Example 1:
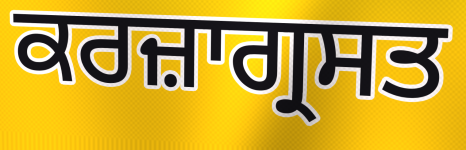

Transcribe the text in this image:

ਕਰਜ਼ਾਗ੍ਰਸਤ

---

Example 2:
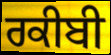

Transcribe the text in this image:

ਰਕੀਬੀ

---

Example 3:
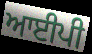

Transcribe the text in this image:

ਆਈਪੀ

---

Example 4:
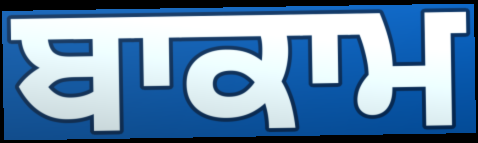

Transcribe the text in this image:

ਬਾਕਾਮ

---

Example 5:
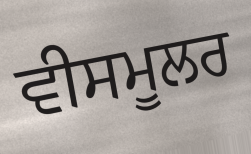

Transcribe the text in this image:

ਵੀਸਮੂਲਰ